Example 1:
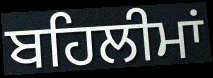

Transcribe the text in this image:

ਬਹਿਲੀਮਾਂ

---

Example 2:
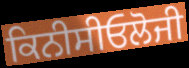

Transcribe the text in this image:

ਕਿਨੀਸੀਓਲੋਜੀ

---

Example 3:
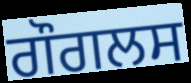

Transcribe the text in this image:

ਗੌਗਲਸ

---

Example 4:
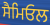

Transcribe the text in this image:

ਸੈਮਿਓਲ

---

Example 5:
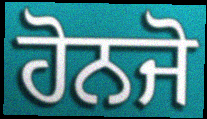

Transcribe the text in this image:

ਹੋਨਜੋ